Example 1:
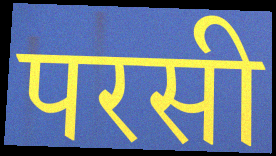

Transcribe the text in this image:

परसी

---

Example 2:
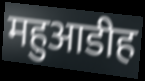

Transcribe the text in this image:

महुआडीह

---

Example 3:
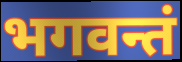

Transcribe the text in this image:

भगवन्तं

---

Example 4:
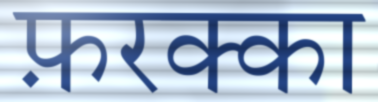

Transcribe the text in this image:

फ़रक्का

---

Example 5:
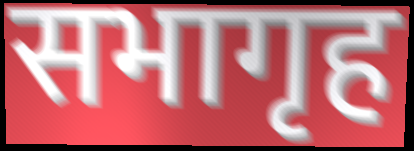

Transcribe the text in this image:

सभागृह